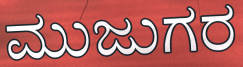
ಮುಜುಗರ